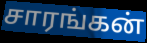
சாரங்கன்